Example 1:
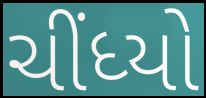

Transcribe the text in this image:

ચીંધ્યો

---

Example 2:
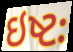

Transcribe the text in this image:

ઇષ્ટઃ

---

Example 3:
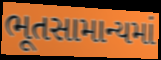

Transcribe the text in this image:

ભૂતસામાન્યમાં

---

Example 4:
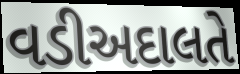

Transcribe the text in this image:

વડીઅદાલતે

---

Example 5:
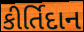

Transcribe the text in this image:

કીર્તિદાન